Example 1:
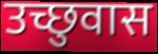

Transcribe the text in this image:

उच्छुवास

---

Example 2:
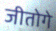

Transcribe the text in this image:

जीतोगे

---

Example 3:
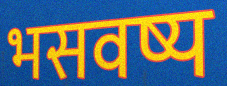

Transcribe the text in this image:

भसवष्य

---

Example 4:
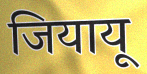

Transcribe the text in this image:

जियायू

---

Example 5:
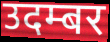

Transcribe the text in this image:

उदम्बर